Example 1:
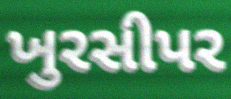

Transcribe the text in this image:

ખુરસીપર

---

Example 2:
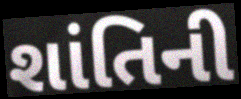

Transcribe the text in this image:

શાંતિની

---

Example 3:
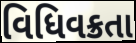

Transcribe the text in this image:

વિધિવક્રતા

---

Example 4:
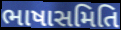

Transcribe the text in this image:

ભાષાસમિતિ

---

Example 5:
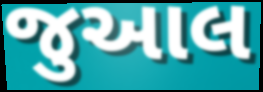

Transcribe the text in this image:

જુઆલ